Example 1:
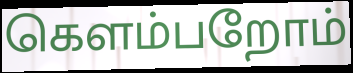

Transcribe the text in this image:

கெளம்பறோம்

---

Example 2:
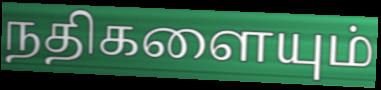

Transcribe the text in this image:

நதிகளையும்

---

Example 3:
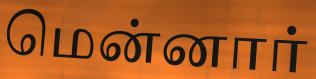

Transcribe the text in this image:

மென்னார்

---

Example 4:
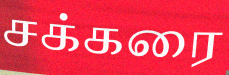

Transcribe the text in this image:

சக்கரை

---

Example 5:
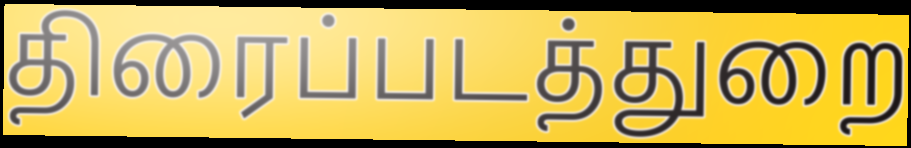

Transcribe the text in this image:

திரைப்படத்துறை